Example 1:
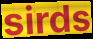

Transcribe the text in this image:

sirds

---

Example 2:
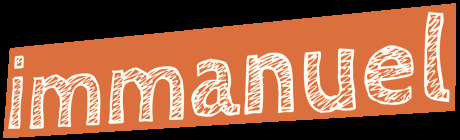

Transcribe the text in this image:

immanuel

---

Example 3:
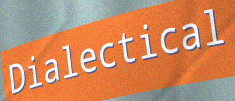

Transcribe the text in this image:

Dialectical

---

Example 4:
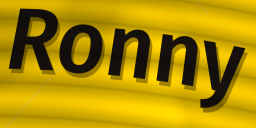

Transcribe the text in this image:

Ronny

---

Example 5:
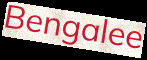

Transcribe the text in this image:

Bengalee